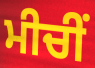
ਮੀਚੀਂ